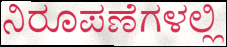
ನಿರೂಪಣೆಗಳಲ್ಲಿ